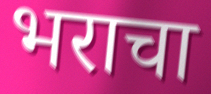
भराचा